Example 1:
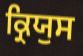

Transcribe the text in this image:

ਕ੍ਰਿਯੁਸ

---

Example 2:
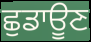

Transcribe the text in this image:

ਛੁਡਾਊਣ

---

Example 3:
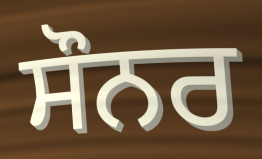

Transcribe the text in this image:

ਸੌਨਰ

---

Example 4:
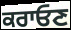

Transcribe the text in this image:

ਕਰਾਓਣ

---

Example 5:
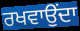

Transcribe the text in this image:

ਰਖਵਾਉਂਦਾ